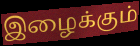
இழைக்கும்